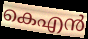
കെഎൻ